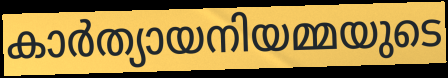
കാർത്യായനിയമ്മയുടെ